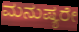
ಮನುಷ್ಯರೇ